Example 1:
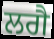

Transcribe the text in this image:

ਲਗੈ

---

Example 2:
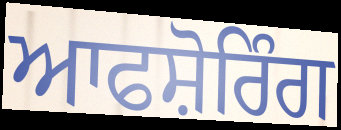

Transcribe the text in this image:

ਆਫਸ਼ੋਰਿੰਗ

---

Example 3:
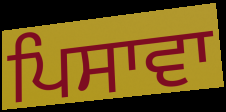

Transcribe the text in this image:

ਪਿਸਾਵਾ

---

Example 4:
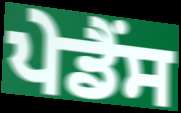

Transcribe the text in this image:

ਪੇਡੈਂਸ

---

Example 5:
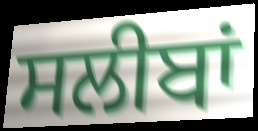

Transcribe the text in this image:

ਸਲੀਬਾਂ